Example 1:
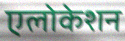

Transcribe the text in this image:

एलोकेशन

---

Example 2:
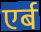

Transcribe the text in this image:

एर्ब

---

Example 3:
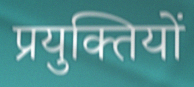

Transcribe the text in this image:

प्रयुक्तियों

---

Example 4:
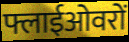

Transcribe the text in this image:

फ्लाईओवरों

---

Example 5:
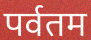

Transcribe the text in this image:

पर्वतम